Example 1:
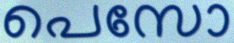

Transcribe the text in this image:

പെസോ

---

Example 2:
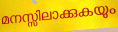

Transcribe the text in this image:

മനസ്സിലാക്കുകയും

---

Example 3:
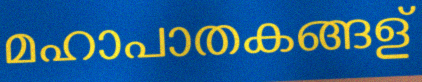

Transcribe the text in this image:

മഹാപാതകങ്ങള്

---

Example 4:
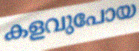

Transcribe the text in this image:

കളവുപോയ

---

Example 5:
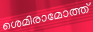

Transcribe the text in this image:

ശെമിരാമോത്ത്